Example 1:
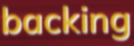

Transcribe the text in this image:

backing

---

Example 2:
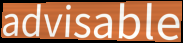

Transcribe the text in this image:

advisable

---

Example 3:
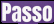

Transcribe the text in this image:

Passo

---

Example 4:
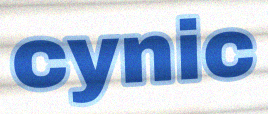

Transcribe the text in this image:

cynic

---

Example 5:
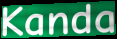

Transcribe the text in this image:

Kanda